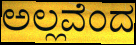
ಅಲ್ಲವೆಂದ